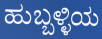
ಹುಬ್ಬಳ್ಳಿಯ